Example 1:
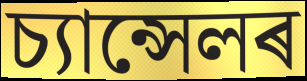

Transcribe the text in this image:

চ্যান্সেলৰ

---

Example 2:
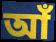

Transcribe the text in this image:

আঁ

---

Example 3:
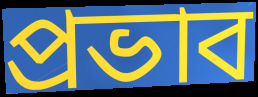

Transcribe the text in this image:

প্ৰভাব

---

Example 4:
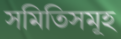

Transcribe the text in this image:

সমিতিসমূহ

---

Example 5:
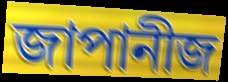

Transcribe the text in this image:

জাপানীজ